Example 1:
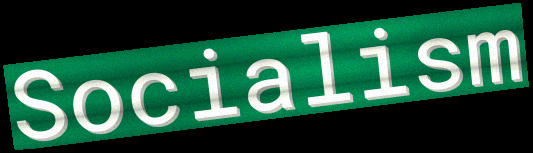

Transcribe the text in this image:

Socialism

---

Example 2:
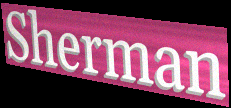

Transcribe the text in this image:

Sherman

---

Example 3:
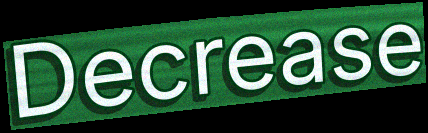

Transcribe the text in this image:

Decrease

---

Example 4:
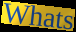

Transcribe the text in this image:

Whats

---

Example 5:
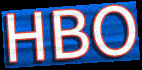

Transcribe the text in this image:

HBO